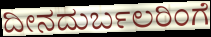
ದೀನದುರ್ಬಲರಿಂಗೆ